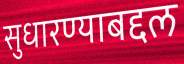
सुधारण्याबद्दल